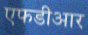
एफडीआर